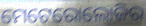
ମେଟେରୋଲୋଜିର